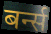
बर्न्स